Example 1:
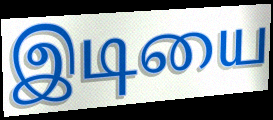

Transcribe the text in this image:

இடியை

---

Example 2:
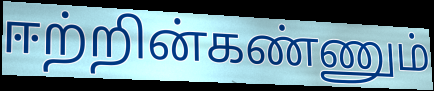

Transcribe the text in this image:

ஈற்றின்கண்ணும்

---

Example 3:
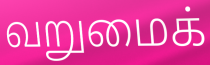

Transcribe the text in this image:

வறுமைக்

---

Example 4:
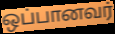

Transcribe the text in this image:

ஒப்பானவர்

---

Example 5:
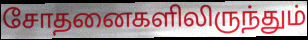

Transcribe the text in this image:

சோதனைகளிலிருந்தும்